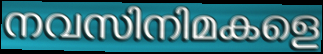
നവസിനിമകളെ